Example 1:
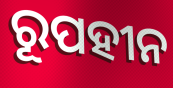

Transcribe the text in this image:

ରୂପହୀନ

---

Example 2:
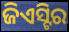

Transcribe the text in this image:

ଜିଏସ୍ଟିର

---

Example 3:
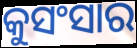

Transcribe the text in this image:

କୁସଂସାର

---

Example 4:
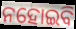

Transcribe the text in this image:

ନହୋଇବି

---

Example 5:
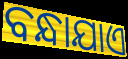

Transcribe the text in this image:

ବନ୍ଧାଯାଏ